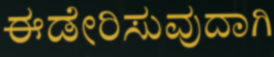
ಈಡೇರಿಸುವುದಾಗಿ